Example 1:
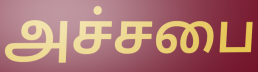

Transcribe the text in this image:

அச்சபை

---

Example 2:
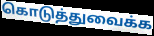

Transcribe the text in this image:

கொடுத்துவைக்க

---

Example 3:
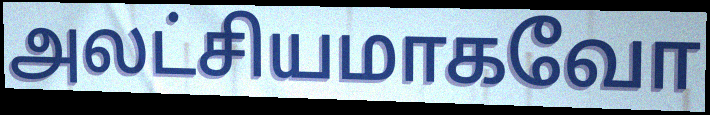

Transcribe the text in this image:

அலட்சியமாகவோ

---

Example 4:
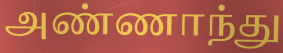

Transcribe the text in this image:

அண்ணாந்து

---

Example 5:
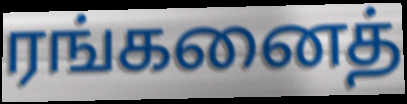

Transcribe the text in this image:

ரங்கனைத்